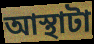
আস্থাটা